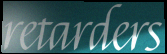
retarders